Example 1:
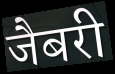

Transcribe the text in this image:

जैबरी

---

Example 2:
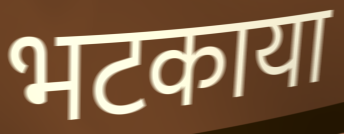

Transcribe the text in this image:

भटकाया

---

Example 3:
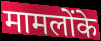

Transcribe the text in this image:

मामलोंके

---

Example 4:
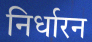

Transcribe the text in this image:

निर्धारन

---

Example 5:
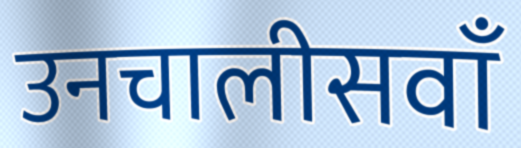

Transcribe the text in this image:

उनचालीसवाँ